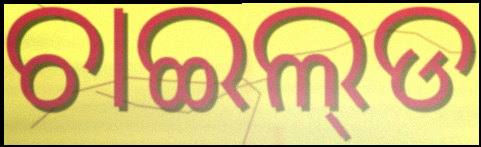
ଚାଇଲ୍‌ଡ